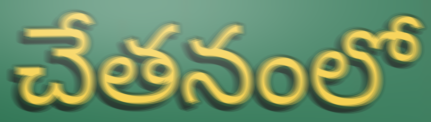
చేతనంలో